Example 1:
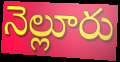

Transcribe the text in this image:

నెల్లూరు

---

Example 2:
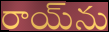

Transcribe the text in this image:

రాయ్‌ను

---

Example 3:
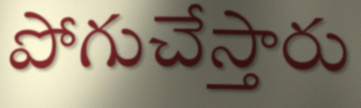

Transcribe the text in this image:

పోగుచేస్తారు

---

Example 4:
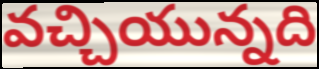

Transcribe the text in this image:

వచ్చియున్నది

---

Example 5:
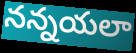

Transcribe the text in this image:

నన్నయలా